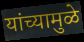
यांच्यामुळे